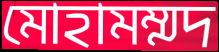
মোহামম্মদ